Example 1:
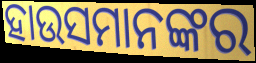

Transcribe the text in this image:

ହାଉସମାନଙ୍କର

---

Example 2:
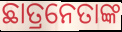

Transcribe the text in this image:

ଛାତ୍ରନେତାଙ୍କ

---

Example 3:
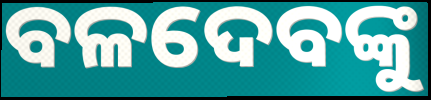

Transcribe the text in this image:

ବଳଦେବଙ୍କୁ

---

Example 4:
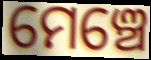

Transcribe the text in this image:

ମେଞ୍ଚେ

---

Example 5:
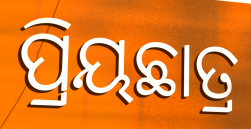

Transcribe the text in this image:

ପ୍ରିୟଛାତ୍ର